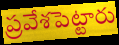
ప్రవేశపెట్టారు